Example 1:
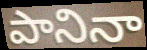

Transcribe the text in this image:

పానినా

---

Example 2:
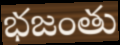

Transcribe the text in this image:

భజంతు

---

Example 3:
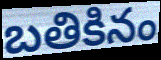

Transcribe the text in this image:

బతికినం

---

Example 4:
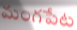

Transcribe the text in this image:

మంగపేట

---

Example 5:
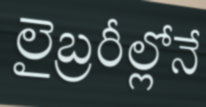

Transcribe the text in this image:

లైబ్రరీల్లోనే